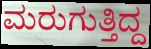
ಮರುಗುತ್ತಿದ್ದ